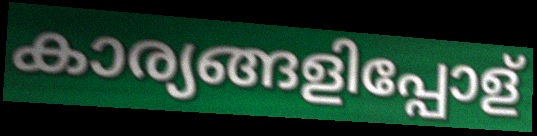
കാര്യങ്ങളിപ്പോള്